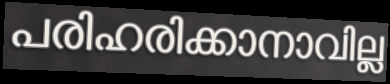
പരിഹരിക്കാനാവില്ല